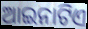
ଆଇନାଟିଏ